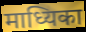
माध्यिका